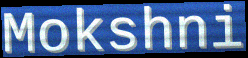
Mokshni